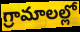
గ్రామాలల్లో